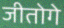
जीतोगे